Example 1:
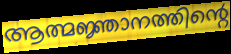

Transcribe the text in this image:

ആത്മജ്ഞാനത്തിന്റെ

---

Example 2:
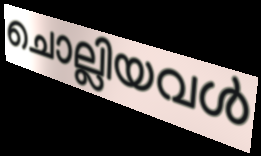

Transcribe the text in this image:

ചൊല്ലിയവൾ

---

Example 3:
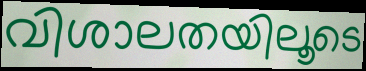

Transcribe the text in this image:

വിശാലതയിലൂടെ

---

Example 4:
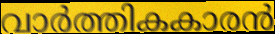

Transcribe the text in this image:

വാർത്തികകാരൻ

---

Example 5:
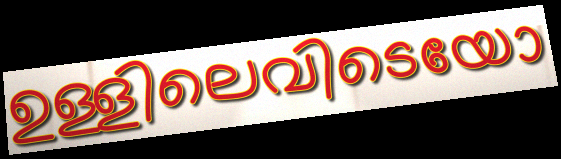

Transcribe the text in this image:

ഉള്ളിലെവിടെയോ